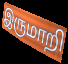
இருமாறி